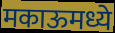
मकाऊमध्ये